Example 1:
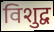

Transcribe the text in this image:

विशुद्व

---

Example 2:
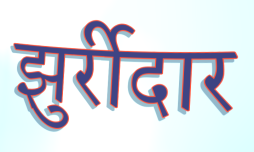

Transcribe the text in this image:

झुर्रीदार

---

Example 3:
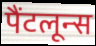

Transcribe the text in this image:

पैंटलून्स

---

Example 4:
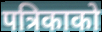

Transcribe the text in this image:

पत्रिकाको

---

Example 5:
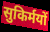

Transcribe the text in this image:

सुकिर्मयों